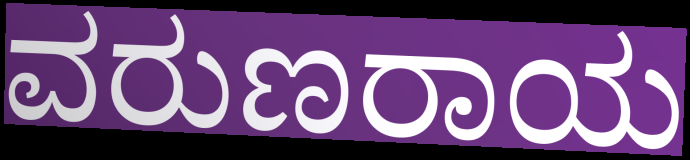
ವರುಣರಾಯ